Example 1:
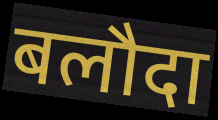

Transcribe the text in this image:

बलौदा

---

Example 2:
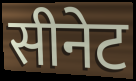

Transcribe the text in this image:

सीनेट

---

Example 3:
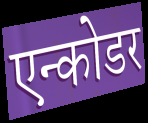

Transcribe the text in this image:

एन्कोडर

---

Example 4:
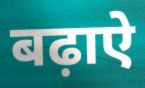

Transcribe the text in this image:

बढ़ाऐ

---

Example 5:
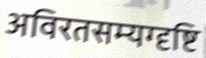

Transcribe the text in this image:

अविरतसम्यग्दृष्टि